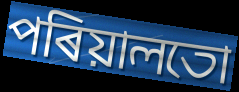
পৰিয়ালতো